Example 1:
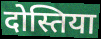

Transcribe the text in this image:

दोस्तिया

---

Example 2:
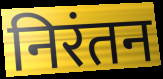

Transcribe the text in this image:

निरंतन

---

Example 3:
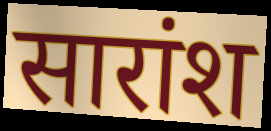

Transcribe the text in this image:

सारांश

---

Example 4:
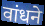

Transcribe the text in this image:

वांधने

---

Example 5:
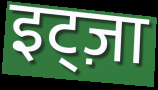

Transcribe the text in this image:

इट्ज़ा